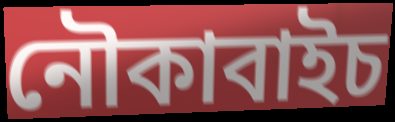
নৌকাবাইচ